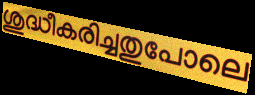
ശുദ്ധീകരിച്ചതുപോലെ